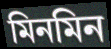
মিনমিন